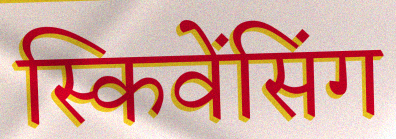
स्किवेंसिंग